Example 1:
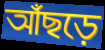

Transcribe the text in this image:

আঁছড়ে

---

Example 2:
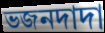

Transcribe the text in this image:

ভজনদাদা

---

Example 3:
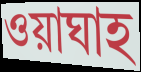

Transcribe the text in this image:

ওয়াঘাহ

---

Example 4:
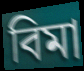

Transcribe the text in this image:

বিমা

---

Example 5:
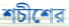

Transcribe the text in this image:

শচীশের